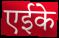
एईके